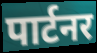
पार्टनर